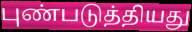
புண்படுத்தியது